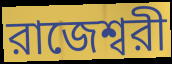
রাজেশ্বরী